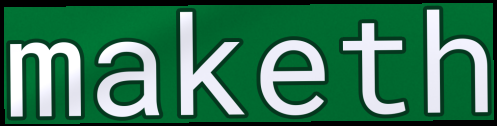
maketh